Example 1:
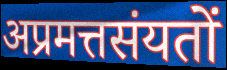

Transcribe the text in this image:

अप्रमत्तसंयतों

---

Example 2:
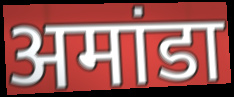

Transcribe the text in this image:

अमांडा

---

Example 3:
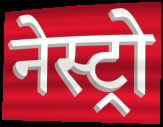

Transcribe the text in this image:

नेस्ट्रो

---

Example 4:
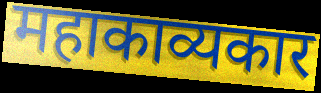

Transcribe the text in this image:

महाकाव्यकार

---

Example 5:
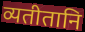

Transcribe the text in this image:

व्यतीतानि